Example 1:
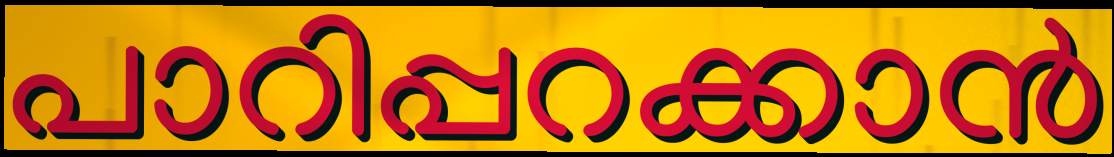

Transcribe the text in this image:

പാറിപ്പറക്കാൻ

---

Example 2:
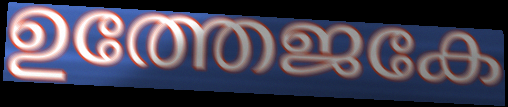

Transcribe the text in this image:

ഉത്തേജകേ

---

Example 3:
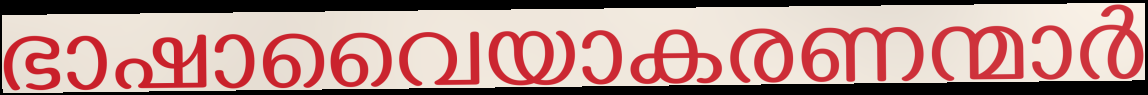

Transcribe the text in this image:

ഭാഷാവൈയാകരണന്മാർ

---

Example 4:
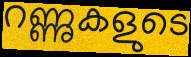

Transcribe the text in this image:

റണ്ണുകളുടെ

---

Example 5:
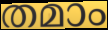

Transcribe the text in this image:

തമാം